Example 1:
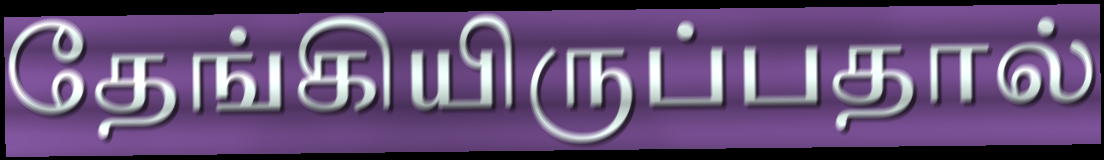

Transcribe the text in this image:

தேங்கியிருப்பதால்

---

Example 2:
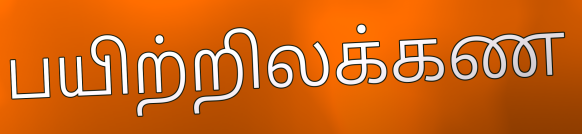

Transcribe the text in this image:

பயிற்றிலக்கண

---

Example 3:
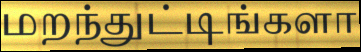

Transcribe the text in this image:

மறந்துட்டிங்களா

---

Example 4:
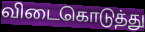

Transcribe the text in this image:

விடைகொடுத்து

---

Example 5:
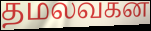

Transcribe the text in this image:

தமலவகன